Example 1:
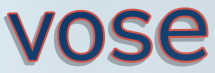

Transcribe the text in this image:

vose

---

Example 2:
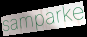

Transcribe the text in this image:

samparke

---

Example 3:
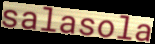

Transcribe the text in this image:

salasola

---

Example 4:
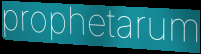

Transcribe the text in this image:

prophetarum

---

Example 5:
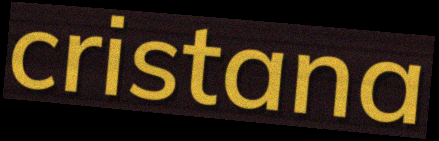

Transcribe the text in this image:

cristana